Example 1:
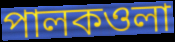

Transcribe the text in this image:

পালকওলা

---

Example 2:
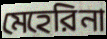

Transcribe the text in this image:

মেহেরিনা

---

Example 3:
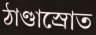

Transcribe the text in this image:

ঠাণ্ডাস্রোত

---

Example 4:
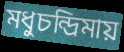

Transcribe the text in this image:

মধুচন্দ্রিমায়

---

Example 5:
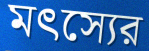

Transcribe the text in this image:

মৎস্যের